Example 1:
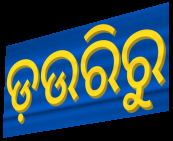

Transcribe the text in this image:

ଡ଼ଉରିରୁ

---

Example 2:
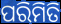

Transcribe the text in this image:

ପରିମିତି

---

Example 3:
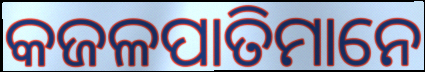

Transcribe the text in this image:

କଜଳପାତିମାନେ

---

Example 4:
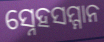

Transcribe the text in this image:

ସ୍ନେହସମ୍ମାନ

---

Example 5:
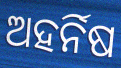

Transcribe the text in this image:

ଅହର୍ନିଷ